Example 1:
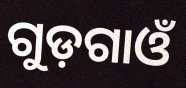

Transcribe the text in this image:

ଗୁଡ଼ଗାଓଁ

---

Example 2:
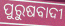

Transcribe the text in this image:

ପୁରୁଷବାଦୀ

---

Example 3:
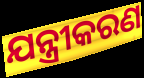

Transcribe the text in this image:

ଯନ୍ତ୍ରୀକରଣ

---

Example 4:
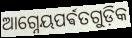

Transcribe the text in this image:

ଆଗ୍ନେୟପର୍ଵତଗୁଡ଼ିକ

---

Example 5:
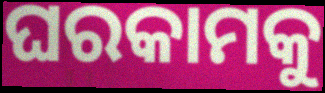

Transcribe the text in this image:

ଘରକାମକୁ